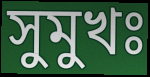
সুমুখঃ